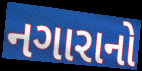
નગારાનો